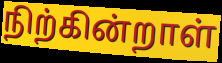
நிற்கின்றாள்